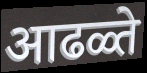
आढळ्ते